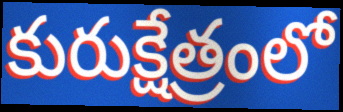
కురుక్షేత్రంలో